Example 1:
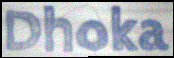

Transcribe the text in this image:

Dhoka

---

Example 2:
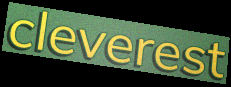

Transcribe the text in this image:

cleverest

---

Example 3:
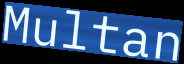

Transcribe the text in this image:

Multan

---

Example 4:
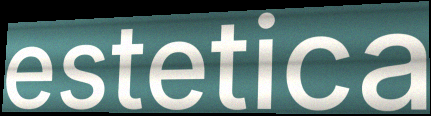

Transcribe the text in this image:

estetica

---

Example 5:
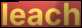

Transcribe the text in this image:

leach